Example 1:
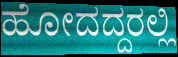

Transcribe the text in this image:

ಹೋದದ್ದರಲ್ಲಿ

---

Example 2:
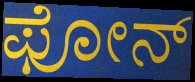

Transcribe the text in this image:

ಫೋನ್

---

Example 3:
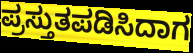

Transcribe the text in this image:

ಪ್ರಸ್ತುತಪಡಿಸಿದಾಗ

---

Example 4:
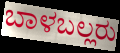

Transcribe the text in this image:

ಬಾಳಬಲ್ಲರು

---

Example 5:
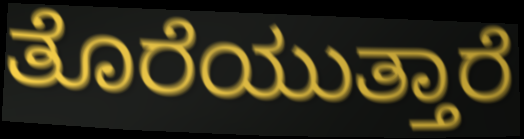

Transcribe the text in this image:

ತೊರೆಯುತ್ತಾರೆ